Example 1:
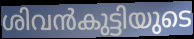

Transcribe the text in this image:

ശിവൻകുട്ടിയുടെ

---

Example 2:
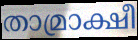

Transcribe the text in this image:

താമ്രാക്ഷീ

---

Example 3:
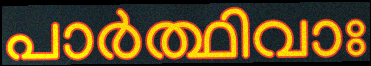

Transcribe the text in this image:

പാർത്ഥിവാഃ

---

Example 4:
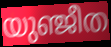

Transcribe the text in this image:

യുഞ്ജീത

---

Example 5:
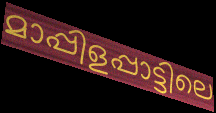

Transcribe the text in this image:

മാപ്പിളപ്പാട്ടിലെ